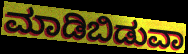
ಮಾಡಿಬಿಡುವಾ